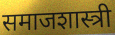
समाजशास्त्री